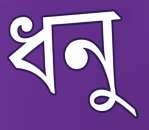
ধনু